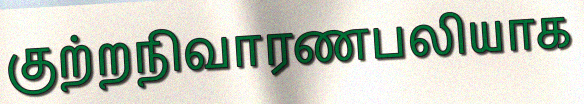
குற்றநிவாரணபலியாக